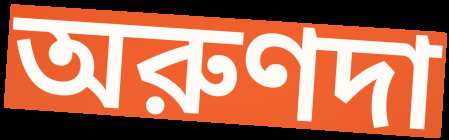
অরুণদা